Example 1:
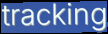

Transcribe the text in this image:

tracking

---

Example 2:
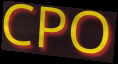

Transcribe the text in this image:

CPO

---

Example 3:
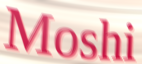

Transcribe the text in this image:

Moshi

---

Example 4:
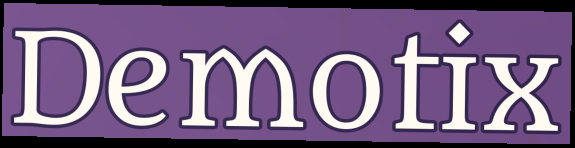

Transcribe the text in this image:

Demotix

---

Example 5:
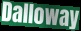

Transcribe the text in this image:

Dalloway